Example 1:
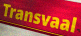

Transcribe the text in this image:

Transvaal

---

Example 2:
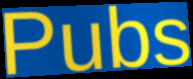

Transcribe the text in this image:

Pubs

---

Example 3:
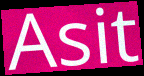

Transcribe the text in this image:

Asit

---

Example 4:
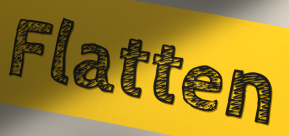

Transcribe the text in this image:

Flatten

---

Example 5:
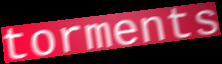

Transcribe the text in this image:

torments